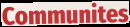
Communites